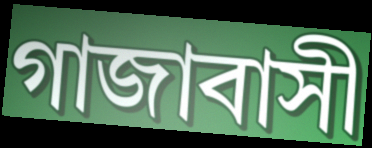
গাজাবাসী